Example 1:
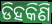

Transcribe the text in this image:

ଡିହକିଣି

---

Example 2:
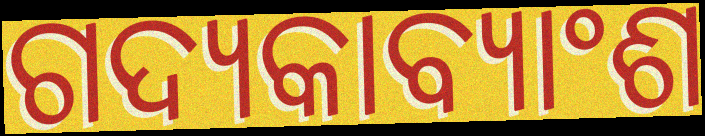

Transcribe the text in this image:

ଗଦ୍ୟକାବ୍ୟାଂଶ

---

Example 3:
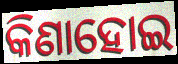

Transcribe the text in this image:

କିଣାହୋଇ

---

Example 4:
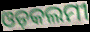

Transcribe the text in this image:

ଓଡ଼କଲମୀ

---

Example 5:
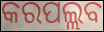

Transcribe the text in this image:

କରପଲ୍ଲବ